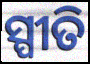
ସ୍ପୀତି